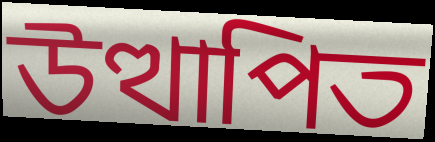
উত্থাপিত